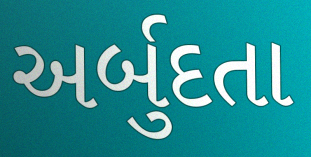
અર્બુદતા